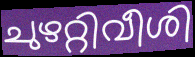
ചുഴറ്റിവീശി